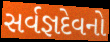
સર્વજ્ઞદેવનો